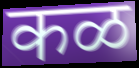
कळ